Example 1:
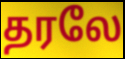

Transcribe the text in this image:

தரலே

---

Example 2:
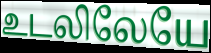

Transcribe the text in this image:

உடலிலேயே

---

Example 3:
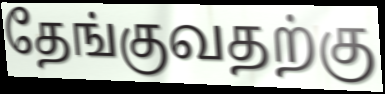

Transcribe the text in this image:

தேங்குவதற்கு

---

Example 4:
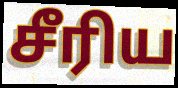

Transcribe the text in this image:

சீரிய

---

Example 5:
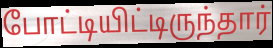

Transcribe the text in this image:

போட்டியிட்டிருந்தார்